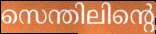
സെന്തിലിന്റെ